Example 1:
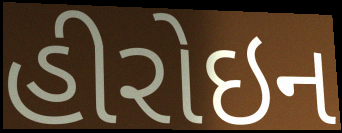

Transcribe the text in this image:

હીરોઇન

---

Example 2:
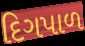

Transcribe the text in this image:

દિગપાળ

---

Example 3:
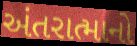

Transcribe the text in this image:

અંતરાત્માનો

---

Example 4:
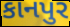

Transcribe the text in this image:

કાનપુર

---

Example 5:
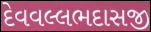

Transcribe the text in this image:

દેવવલ્લભદાસજી